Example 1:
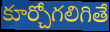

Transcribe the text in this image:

కూర్చోగలిగితే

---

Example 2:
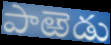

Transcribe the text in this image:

పాఱెడు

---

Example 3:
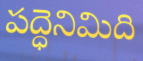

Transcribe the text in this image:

పద్ధెనిమిది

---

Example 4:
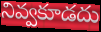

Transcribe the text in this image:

నివ్వకూడదు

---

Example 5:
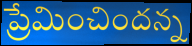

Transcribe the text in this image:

ప్రేమించిందన్న